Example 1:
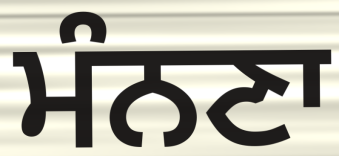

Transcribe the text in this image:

ਮੰਨਣਾ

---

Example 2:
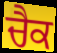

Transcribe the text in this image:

ਚੈਕ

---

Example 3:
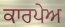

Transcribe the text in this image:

ਕਾਰਪੇਅ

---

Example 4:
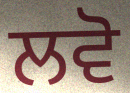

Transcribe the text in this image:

ਲਵੋ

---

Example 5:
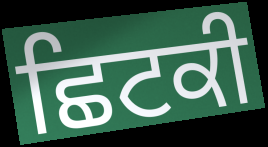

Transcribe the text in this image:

ਛਿਟਕੀ